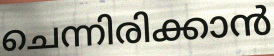
ചെന്നിരിക്കാൻ